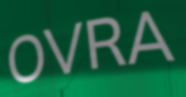
OVRA